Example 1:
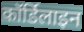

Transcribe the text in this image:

कॉर्डिलाइन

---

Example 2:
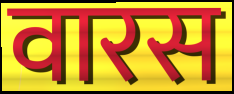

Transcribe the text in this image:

वारस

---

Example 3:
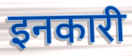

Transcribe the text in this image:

इनकारी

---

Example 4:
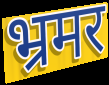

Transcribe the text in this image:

भ्रमर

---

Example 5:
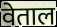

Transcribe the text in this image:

वेताल